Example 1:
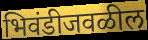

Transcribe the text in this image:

भिवंडीजवळील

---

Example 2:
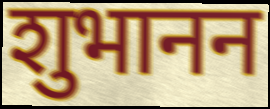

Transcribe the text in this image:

शुभानन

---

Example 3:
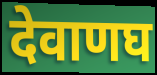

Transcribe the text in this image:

देवाणघ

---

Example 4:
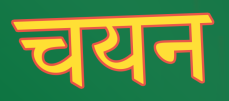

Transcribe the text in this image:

चयन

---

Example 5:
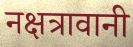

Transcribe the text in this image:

नक्षत्रावानी